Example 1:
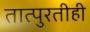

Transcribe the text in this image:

तात्पुरतीही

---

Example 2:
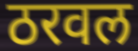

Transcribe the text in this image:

ठरवल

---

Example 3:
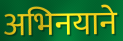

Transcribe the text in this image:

अभिनयाने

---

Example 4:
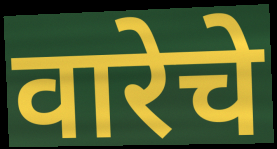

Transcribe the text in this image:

वारेचे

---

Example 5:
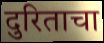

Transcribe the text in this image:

दुरिताचा